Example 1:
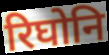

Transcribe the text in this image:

रिघोनि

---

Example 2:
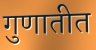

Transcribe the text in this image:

गुणातीत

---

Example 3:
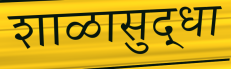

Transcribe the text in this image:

शाळासुद्धा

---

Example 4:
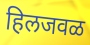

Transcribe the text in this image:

हिलजवळ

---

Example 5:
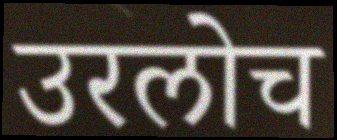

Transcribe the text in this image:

उरलोच